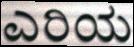
ಎರಿಯ